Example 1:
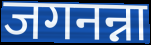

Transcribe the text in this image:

जगनन्ना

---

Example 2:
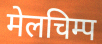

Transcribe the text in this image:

मेलचिम्प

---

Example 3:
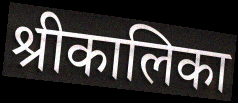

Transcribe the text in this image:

श्रीकालिका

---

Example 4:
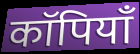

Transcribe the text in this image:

कॉपियाँ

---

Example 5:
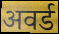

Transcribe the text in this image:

अवर्ड